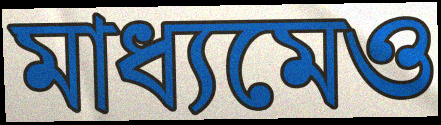
মাধ্যমেও